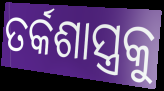
ତର୍କଶାସ୍ତ୍ରକୁ